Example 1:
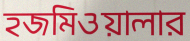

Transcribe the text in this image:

হজমিওয়ালার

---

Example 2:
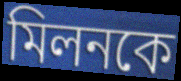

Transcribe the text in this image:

মিলনকে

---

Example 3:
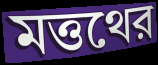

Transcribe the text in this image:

মত্তথের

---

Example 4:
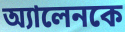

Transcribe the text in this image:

অ্যালেনকে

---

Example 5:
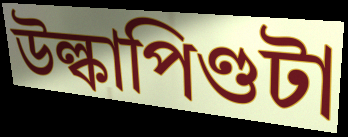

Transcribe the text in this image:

উল্কাপিণ্ডটা